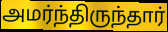
அமர்ந்திருந்தார்